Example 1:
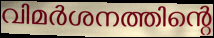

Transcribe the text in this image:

വിമർശനത്തിന്റെ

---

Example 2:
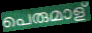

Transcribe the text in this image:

പെരുമാള്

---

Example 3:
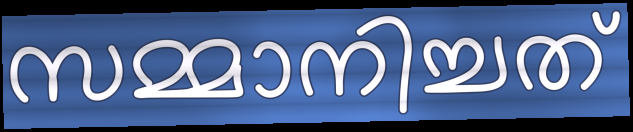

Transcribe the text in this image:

സമ്മാനിച്ചത്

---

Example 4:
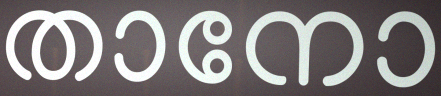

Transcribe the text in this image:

താനോ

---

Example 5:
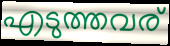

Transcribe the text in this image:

എടുത്തവര്